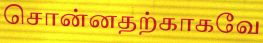
சொன்னதற்காகவே